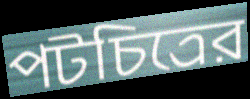
পটচিত্রের